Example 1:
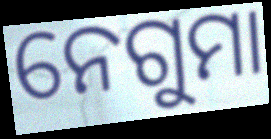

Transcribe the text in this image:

ନେଗୁମା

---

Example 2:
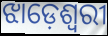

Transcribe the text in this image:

ଝାଡ଼େଶ୍ୱରୀ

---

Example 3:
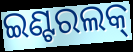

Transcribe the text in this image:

ଇଣ୍ଟରଲକ୍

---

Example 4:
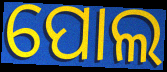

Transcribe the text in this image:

ପୋଲ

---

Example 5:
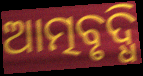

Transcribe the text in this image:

ଆତ୍ମବୃଦ୍ଧି